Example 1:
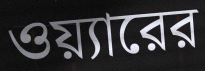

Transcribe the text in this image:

ওয়্যারের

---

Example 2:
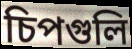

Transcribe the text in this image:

চিপগুলি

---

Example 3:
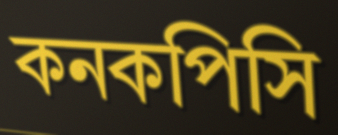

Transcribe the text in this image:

কনকপিসি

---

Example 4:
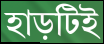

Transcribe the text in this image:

হাড়টিই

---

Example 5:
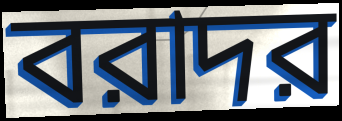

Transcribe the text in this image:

বরাদর